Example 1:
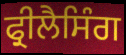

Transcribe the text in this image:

ਫ੍ਰੀਲੈਸਿੰਗ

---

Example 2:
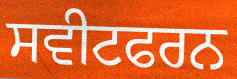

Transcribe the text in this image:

ਸਵੀਟਫਰਨ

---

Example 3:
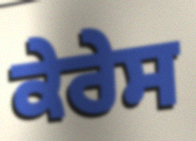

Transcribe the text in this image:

ਕੇਰੇਸ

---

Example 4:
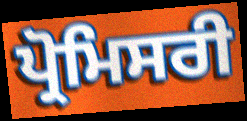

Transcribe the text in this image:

ਪ੍ਰੋਮਿਸਰੀ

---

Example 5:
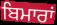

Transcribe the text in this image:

ਬਿਮਾਰਾਂ